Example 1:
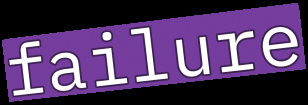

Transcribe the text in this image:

failure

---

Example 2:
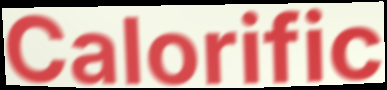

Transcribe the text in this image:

Calorific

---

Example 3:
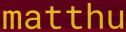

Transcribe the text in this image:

matthu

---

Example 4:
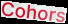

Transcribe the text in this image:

Cohors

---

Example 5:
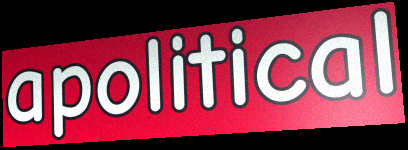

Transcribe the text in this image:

apolitical